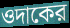
ওদাকের